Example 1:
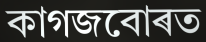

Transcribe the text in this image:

কাগজবোৰত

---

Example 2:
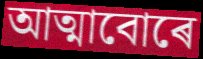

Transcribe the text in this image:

আত্মাবোৰে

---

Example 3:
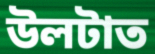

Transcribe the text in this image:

উলটাত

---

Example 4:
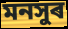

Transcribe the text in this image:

মনসুৰ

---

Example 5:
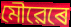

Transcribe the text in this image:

মৌৱেৰে